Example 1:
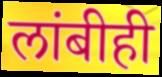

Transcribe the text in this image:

लांबीही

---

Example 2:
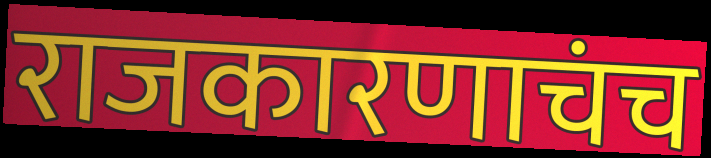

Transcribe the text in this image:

राजकारणाचंच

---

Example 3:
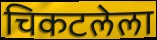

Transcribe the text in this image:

चिकटलेला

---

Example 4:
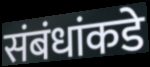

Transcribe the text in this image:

संबंधांकडे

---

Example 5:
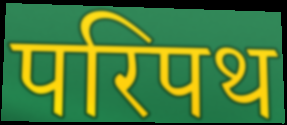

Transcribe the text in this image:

परिपथ